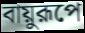
বায়ুরূপে